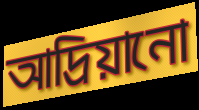
আদ্রিয়ানো